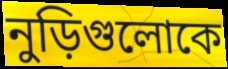
নুড়িগুলোকে